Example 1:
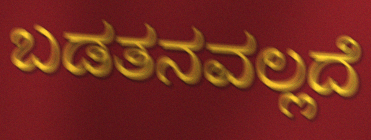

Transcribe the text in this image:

ಬಡತನವಲ್ಲದೆ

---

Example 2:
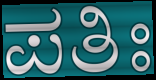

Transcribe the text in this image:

ಪತಿಃ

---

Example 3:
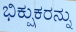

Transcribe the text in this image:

ಭಿಕ್ಷುಕರನ್ನು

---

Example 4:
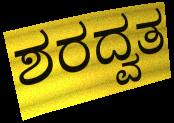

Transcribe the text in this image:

ಶರದ್ವತ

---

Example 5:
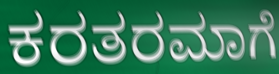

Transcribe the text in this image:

ಕರತರಮಾಗೆ